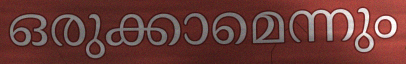
ഒരുക്കാമെന്നും